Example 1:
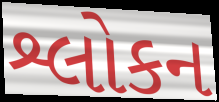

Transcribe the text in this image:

શ્લોકન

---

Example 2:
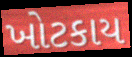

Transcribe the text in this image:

ખોટકાય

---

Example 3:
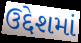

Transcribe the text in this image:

ઉદ્દેશમાં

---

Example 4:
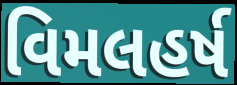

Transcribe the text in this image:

વિમલહર્ષ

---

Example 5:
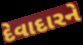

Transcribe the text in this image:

દેવાદારને